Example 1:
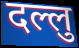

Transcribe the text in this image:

दल्लु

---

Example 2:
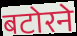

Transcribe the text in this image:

बटोरने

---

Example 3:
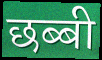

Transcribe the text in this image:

छब्बी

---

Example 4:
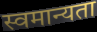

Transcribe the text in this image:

स्वमान्यता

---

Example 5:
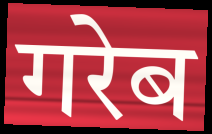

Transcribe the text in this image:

गरेब